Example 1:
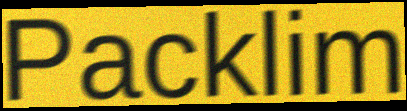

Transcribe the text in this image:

Packlim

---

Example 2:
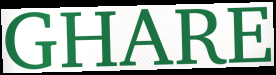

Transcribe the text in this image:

GHARE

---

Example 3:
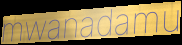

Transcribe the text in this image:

mwanadamu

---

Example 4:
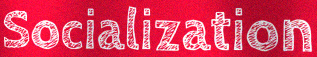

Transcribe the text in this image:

Socialization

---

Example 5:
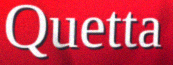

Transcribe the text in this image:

Quetta